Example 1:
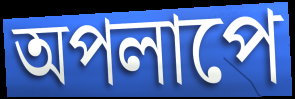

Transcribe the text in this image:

অপলাপে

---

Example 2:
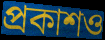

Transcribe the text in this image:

প্রকাশও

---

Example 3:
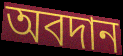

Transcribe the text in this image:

অবদান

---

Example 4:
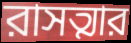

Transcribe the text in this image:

রাসত্মার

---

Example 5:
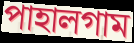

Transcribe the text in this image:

পাহালগাম